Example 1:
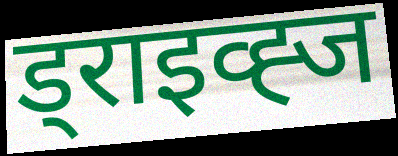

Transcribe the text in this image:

ड्राइव्ह्ज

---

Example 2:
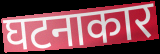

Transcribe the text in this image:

घटनाकार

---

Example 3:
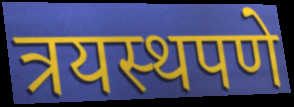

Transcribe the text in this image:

त्रयस्थपणे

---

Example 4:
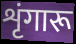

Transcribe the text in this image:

शृंगारू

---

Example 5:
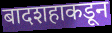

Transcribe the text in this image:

बादशहाकडून